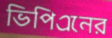
ভিপিএনের